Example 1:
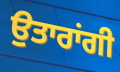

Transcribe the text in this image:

ਉਤਾਰਾਂਗੀ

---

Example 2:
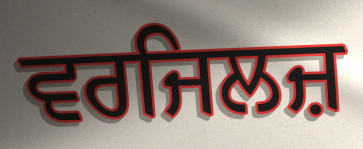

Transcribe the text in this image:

ਵਰਜਿਲਜ਼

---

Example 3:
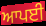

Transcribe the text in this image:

ਆਪਈ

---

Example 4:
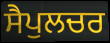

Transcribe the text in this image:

ਸੈਪੁਲਚਰ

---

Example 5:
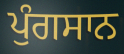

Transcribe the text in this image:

ਪੁੰਗਸਾਨ